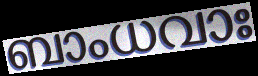
ബാംധവാഃ